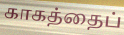
காகத்தைப்